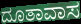
ದೂತಾವಾಸ